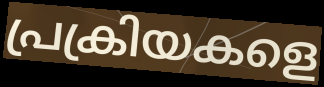
പ്രക്രിയകളെ